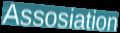
Assosiation